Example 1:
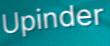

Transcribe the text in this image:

Upinder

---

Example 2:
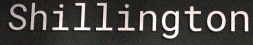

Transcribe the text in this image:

Shillington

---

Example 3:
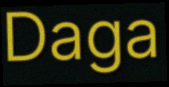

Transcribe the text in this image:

Daga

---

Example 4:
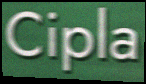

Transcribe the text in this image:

Cipla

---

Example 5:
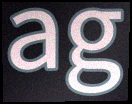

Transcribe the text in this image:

ag